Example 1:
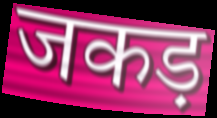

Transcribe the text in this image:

जकड़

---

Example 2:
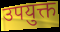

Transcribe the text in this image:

उपयुक्त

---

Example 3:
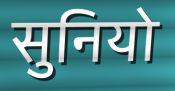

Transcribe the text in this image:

सुनियो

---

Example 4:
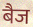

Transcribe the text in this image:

बैज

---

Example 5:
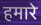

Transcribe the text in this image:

हमारे